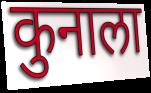
कुनाला